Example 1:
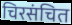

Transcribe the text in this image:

चिरसंचित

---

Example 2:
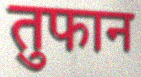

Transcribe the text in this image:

तुफान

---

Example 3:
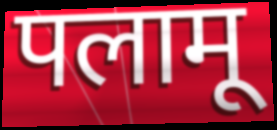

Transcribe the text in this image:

पलामू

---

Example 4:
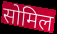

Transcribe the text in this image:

सोमिल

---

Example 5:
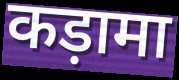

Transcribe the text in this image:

कड़ामा